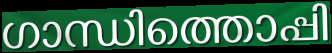
ഗാന്ധിത്തൊപ്പി